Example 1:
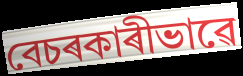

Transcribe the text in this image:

বেচৰকাৰীভাৱে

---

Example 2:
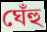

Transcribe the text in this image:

ঘেঁহু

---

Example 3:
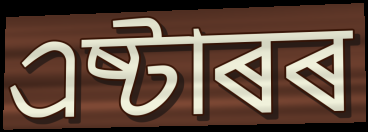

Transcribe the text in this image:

এষ্টাৰৰ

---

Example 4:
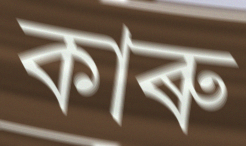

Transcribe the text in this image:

কাৰু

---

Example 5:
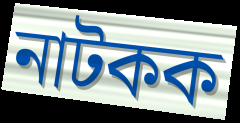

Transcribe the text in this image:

নাটকক